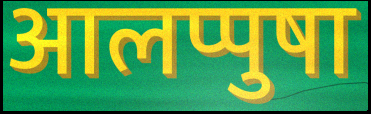
आलप्पुषा